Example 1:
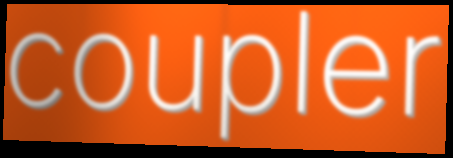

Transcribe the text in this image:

coupler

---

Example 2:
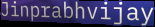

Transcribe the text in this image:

Jinprabhvijay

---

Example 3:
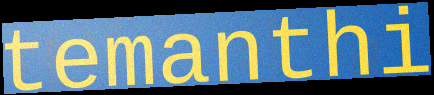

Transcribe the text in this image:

temanthi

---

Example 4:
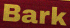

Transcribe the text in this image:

Bark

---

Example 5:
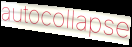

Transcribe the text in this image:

autocollapse